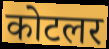
कोटलर